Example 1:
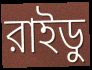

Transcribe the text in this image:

রাইডু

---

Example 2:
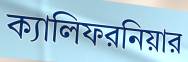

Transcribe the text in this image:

ক্যালিফরনিয়ার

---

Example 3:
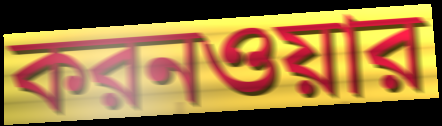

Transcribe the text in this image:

করনওয়ার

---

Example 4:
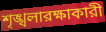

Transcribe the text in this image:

শৃঙ্খলারক্ষাকারী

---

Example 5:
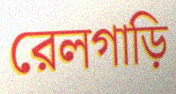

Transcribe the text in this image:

রেলগাড়ি